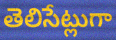
తెలిసేట్లుగా